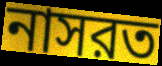
নাসরত